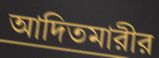
আদিতমারীর